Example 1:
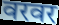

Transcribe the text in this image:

वरवर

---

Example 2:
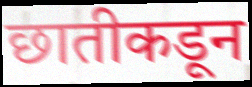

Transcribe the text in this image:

छातीकडून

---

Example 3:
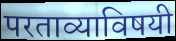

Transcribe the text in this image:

परताव्याविषयी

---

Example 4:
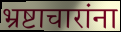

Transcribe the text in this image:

भ्रष्टाचारांना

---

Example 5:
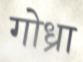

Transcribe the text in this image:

गोध्रा